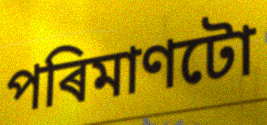
পৰিমাণটো